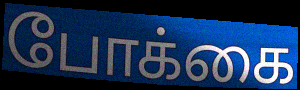
போக்கை